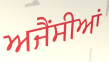
ਅਜੈਂਸੀਆਂ